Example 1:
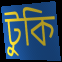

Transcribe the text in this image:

টুকি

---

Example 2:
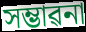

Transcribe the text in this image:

সম্ভাৱনা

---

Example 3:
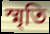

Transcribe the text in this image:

স্মৃতি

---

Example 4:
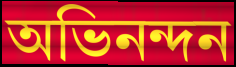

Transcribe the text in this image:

অভিনন্দন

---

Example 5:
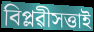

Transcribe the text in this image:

বিপ্লৱীসত্তাই